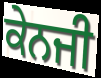
ਕੇਨਜੀ